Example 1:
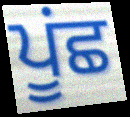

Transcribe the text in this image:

ਪੂਂਛ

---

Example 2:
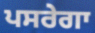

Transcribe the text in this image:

ਪਸਰੇਗਾ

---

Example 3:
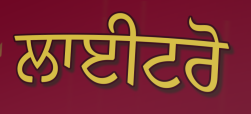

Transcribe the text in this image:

ਲਾਈਟਰੋ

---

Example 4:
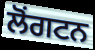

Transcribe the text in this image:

ਲੋਂਗਟਨ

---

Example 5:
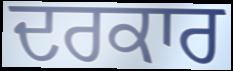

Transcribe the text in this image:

ਦਰਕਾਰ